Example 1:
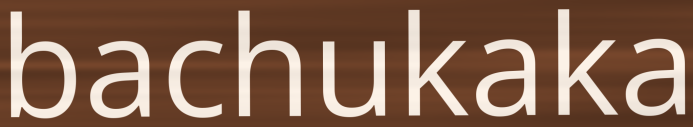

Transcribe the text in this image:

bachukaka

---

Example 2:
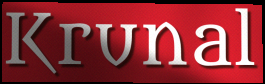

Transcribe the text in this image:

Krunal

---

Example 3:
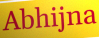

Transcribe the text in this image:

Abhijna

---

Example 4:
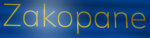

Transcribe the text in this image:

Zakopane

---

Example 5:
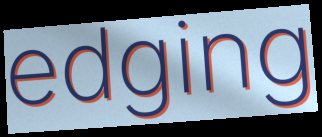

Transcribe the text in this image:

edging